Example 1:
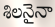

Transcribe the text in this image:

శిలనైనా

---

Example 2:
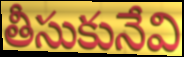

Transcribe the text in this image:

తీసుకునేవి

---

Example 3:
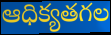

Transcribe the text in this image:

ఆధిక్యతగల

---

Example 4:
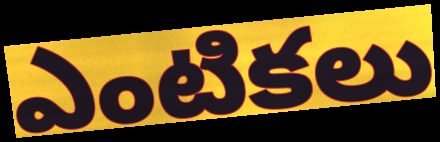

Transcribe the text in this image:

ఎంటికలు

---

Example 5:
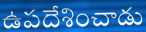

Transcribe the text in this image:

ఉపదేశించాడు